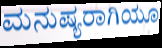
ಮನುಷ್ಯರಾಗಿಯೂ